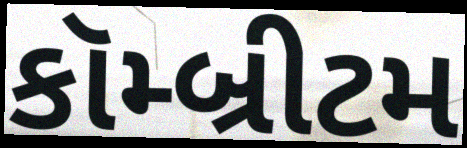
કૉમ્બ્રીટમ